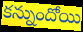
కన్నుందోయి